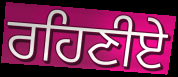
ਰਹਿਣੀਏ